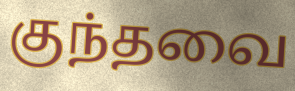
குந்தவை